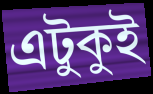
এটুকুই